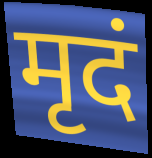
मृदं